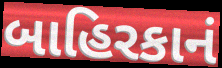
બાહિરકાનં